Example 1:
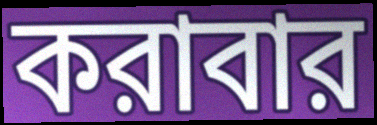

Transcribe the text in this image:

করাবার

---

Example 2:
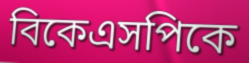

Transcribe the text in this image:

বিকেএসপিকে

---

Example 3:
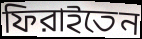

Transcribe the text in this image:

ফিরাইতেন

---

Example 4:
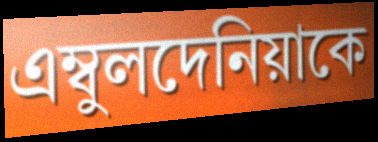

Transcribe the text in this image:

এম্বুলদেনিয়াকে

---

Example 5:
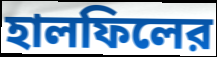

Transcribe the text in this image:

হালফিলের